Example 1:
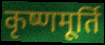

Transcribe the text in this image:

कृष्णमूर्ति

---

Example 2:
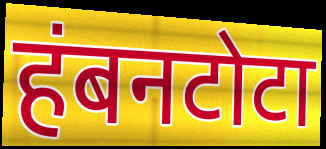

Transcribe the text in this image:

हंबनटोटा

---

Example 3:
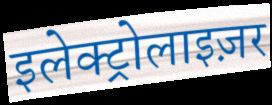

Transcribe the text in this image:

इलेक्ट्रोलाइज़र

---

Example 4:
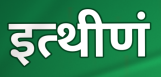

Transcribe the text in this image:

इत्थीणं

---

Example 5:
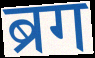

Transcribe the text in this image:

ब्रग